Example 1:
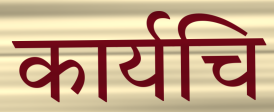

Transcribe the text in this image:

कार्यचि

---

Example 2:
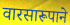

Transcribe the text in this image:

वारसारूपाने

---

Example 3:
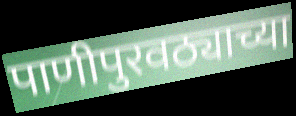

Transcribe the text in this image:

पाणीपुरवठ्याच्या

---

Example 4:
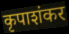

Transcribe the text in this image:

कृपाशंकर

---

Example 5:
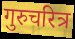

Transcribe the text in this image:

गुरुचरित्र